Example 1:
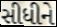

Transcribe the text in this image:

સીધીને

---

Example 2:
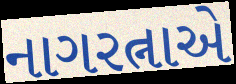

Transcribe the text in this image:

નાગરત્નાએ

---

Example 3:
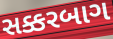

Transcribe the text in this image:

સક્કરબાગ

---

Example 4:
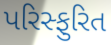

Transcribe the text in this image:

પરિસ્ફુરિત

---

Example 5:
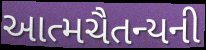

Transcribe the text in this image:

આત્મચૈતન્યની